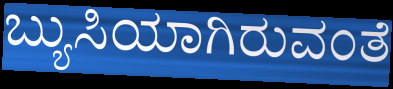
ಬ್ಯುಸಿಯಾಗಿರುವಂತೆ